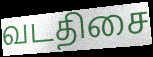
வடதிசை